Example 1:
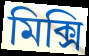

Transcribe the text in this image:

মিক্সি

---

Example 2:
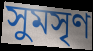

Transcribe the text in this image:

সুমসৃণ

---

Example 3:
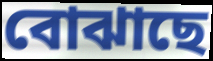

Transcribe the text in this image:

বোঝাছে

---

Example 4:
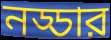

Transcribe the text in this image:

নড্ডার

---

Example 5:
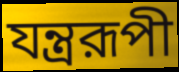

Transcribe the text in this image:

যন্ত্ররূপী